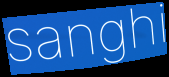
sanghi